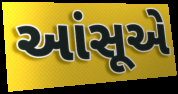
આંસૂએ